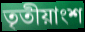
তৃতীয়াংশ